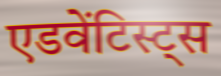
एडवेंटिस्ट्स